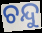
ଚନ୍ଦୁ